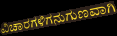
ವಿಚಾರಗಳಿಗನುಗುಣವಾಗಿ